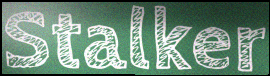
Stalker